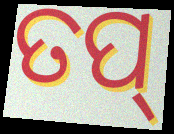
ତପ୍